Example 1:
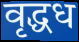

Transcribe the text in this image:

वृद्धध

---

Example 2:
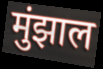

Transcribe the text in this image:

मुंझाल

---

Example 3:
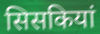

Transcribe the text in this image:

सिसकियां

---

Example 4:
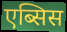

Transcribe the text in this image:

एब्सिस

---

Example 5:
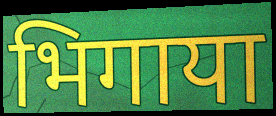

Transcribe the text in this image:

भिगाया